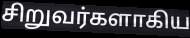
சிறுவர்களாகிய